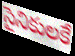
సైనికులకే